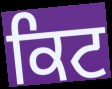
ਕਿਟ